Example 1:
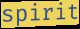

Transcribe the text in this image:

spirit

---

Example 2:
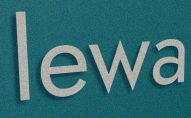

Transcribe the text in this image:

lewa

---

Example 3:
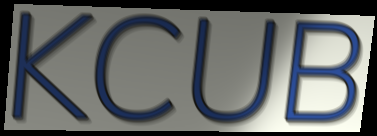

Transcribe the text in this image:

KCUB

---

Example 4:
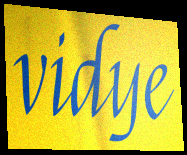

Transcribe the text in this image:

vidye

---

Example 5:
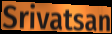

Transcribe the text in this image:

Srivatsan